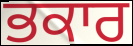
ਭਕਾਰ